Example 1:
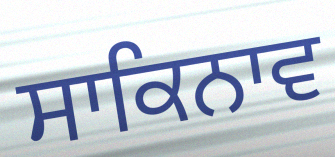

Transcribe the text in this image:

ਸਾਕਿਨਾਵ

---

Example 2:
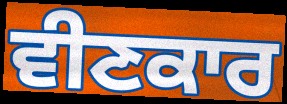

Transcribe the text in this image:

ਵੀਣਕਾਰ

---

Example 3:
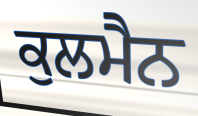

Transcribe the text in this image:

ਕੁਲਮੈਨ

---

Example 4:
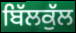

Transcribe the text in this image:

ਬਿੱਲਕੁੱਲ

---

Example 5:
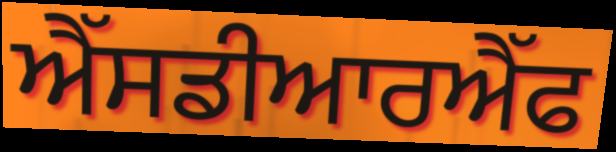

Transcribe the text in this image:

ਐੱਸਡੀਆਰਐੱਫ